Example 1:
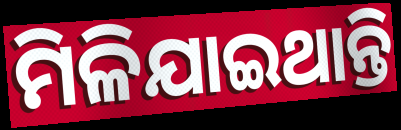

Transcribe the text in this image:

ମିଳିଯାଇଥାନ୍ତି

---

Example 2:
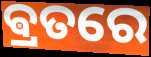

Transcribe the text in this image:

ଵ୍ରତରେ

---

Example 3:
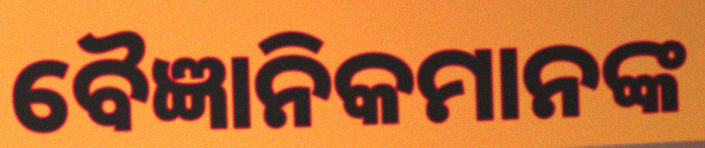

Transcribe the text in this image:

ବୈଜ୍ଞାନିକମାନଙ୍କ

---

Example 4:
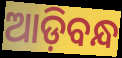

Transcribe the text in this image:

ଆଡ଼ିବନ୍ଧ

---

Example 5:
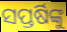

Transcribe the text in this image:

ସପ୍ତର୍ଷିଙ୍କୁ